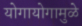
योगायोगामुळे